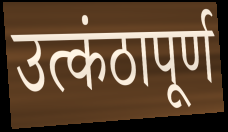
उत्कंठापूर्ण